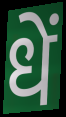
धें